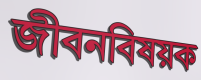
জীবনবিষয়ক